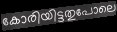
കോരിയിട്ടതുപോലെ